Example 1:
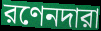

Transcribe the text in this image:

রণেনদারা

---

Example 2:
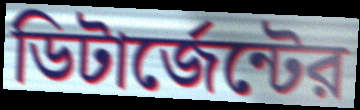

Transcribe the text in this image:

ডিটার্জেন্টের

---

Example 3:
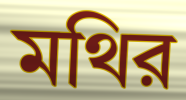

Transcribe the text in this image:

মথির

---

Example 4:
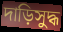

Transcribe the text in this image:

দাড়িসুদ্ধ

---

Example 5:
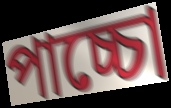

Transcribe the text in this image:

পাচ্চো